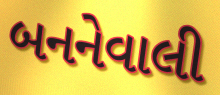
બનનેવાલી